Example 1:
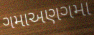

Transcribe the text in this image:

ગમાઅણગમા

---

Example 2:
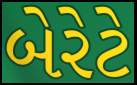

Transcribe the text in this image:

બેરેટે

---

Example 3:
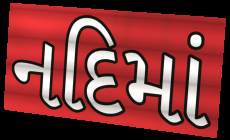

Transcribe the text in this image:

નદિમાં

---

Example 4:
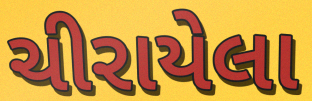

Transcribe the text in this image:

ચીરાયેલા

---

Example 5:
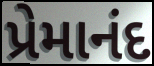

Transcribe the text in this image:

પ્રેમાનંદ